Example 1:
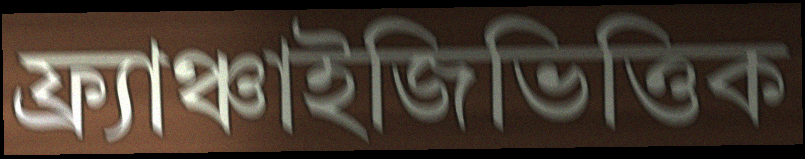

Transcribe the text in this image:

ফ্র্যাঞ্চাইজিভিত্তিক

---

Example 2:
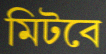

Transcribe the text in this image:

মিটবে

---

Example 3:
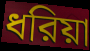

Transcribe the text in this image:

ধরিয়া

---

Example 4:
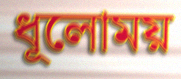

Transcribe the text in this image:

ধূলোময়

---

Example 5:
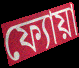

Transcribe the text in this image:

ফ্যোয়া